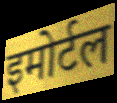
इमोर्टल